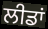
ਲੀਡਾਂ